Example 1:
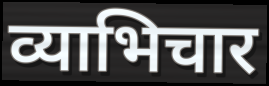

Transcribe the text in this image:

व्याभिचार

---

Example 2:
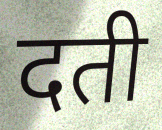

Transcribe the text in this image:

दती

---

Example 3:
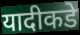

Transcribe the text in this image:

यादीकडे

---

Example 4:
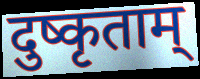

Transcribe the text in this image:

दुष्कृताम्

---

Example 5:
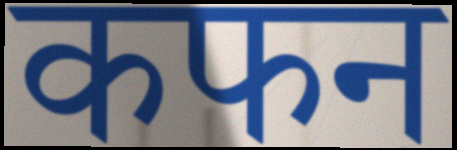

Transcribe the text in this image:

कफन